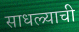
साधल्याची